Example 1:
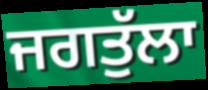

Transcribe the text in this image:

ਜਗਤੁੱਲਾ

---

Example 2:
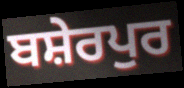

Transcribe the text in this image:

ਬਸ਼ੇਰਪੁਰ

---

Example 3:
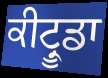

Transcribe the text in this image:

ਕੀਟ੍ਰੂਡਾ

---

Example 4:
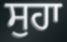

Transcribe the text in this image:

ਸੁਹਾ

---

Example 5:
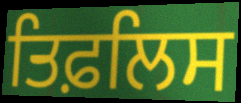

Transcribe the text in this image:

ਤਿਫ਼ਲਿਸ